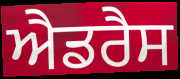
ਐਡਰੈਸ